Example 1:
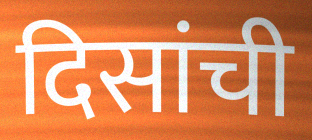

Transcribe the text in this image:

दिसांची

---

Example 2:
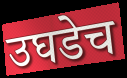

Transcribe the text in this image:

उघडेच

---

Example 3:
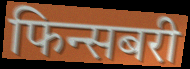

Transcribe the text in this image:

फिन्सबरी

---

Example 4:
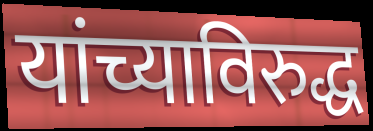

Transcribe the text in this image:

यांच्याविरुद्ध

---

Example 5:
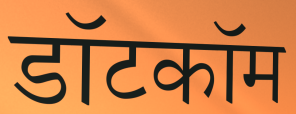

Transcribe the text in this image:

डॉटकॉम